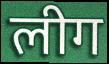
लीग